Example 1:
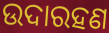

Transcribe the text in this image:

ଉଦାରହଣ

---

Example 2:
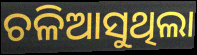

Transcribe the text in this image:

ଚଳିଆସୁଥିଲା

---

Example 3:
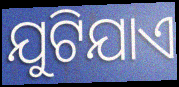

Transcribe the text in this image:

ଯୁଟିଯାଏ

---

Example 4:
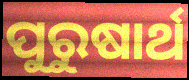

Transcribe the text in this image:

ପୁରୁଷାର୍ଥ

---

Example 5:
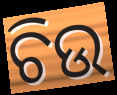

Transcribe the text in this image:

ଚିଉ